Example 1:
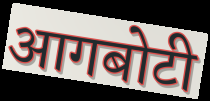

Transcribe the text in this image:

आगबोटी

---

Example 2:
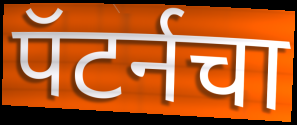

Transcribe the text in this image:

पॅटर्नचा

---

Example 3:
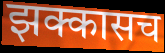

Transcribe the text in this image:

झक्कासच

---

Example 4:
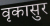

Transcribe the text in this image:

वृकासुर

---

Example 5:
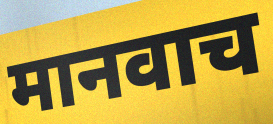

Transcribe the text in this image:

मानवाच